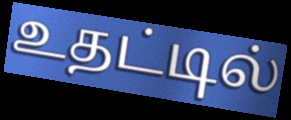
உதட்டில்